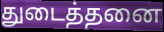
துடைத்தனை